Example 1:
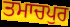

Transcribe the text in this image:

ਤਮਾਚਪੁਰ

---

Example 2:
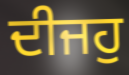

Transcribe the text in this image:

ਦੀਜਹੁ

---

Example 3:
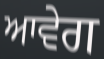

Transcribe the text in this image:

ਆਵੇਗ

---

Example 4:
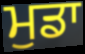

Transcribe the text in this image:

ਮੁਡਾ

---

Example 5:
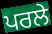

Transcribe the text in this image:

ਪਰਲੇ